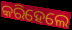
କରିହେଲେ